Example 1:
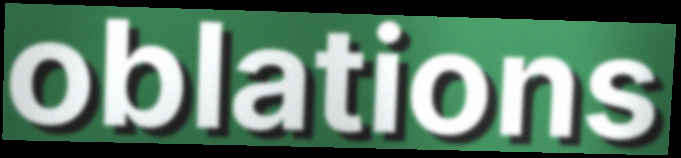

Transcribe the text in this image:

oblations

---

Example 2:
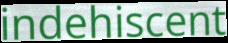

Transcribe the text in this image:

indehiscent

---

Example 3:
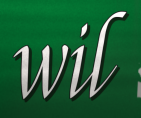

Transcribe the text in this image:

wil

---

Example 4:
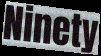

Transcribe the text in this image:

Ninety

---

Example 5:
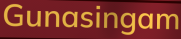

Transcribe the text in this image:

Gunasingam